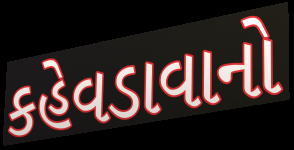
કહેવડાવાનો